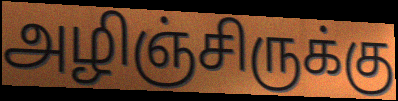
அழிஞ்சிருக்கு